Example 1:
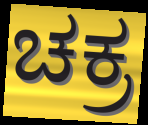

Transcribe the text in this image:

ಚಕ್ರ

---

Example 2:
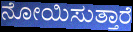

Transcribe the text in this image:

ನೋಯಿಸುತ್ತಾರೆ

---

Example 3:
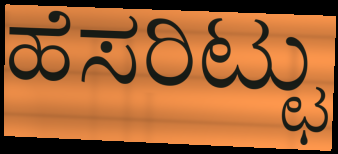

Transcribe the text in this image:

ಹೆಸರಿಟ್ಟು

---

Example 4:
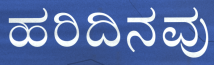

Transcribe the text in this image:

ಹರಿದಿನವು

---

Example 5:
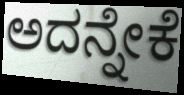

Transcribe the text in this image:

ಅದನ್ನೇಕೆ